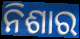
ନିଶାର